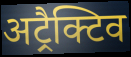
अट्रैक्टिव